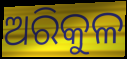
ଅରିକୁଳ